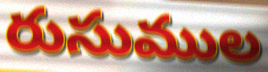
రుసుముల